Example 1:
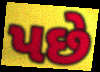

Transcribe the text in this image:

પછે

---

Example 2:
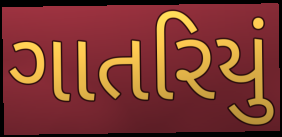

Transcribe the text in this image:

ગાતરિયું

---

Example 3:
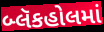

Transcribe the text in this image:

બ્લૅકહોલમાં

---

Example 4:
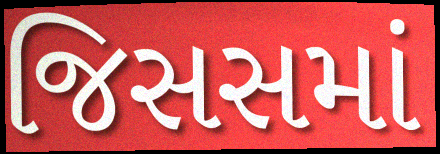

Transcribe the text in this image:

જિસસમાં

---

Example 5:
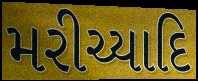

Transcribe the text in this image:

મરીચ્યાદિ